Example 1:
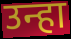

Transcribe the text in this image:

उन्हा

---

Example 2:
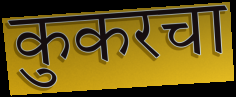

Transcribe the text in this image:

कुकरचा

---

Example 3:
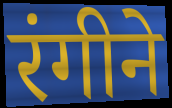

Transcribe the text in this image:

रंगीने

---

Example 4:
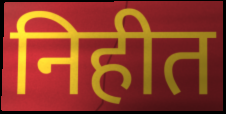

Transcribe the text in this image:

निहीत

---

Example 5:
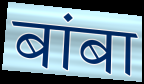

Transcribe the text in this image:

बांबा